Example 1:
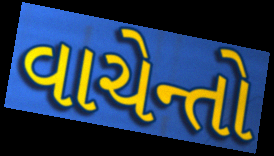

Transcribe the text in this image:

વાચેન્તો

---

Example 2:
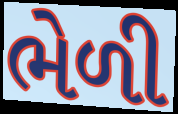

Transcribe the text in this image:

ભેળી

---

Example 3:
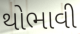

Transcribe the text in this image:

થોભાવી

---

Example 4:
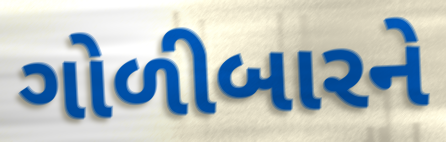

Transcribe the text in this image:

ગોળીબારને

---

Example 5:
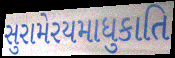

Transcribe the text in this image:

સુરામેરયમાધુકાતિ